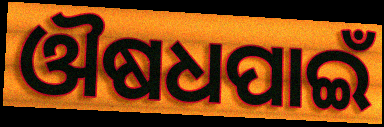
ଔଷଧପାଇଁ